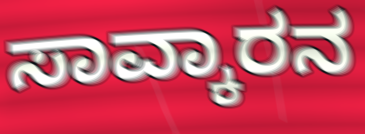
ಸಾವ್ಕಾರನ